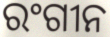
ରଂଗୀନ